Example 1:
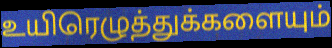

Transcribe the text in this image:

உயிரெழுத்துக்களையும்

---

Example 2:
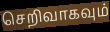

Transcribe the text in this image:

செறிவாகவும்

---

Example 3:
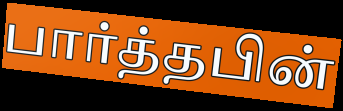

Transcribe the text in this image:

பார்த்தபின்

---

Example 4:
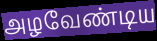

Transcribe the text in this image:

அழவேண்டிய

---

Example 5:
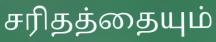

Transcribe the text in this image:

சரிதத்தையும்